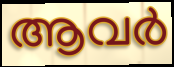
ആവർ